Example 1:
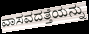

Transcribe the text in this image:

ವಾಸವದತ್ತೆಯನ್ನು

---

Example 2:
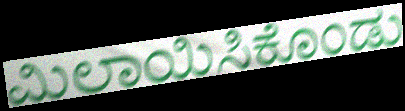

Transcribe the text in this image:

ಮಿಲಾಯಿಸಿಕೊಂಡು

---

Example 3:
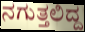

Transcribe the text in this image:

ನಗುತ್ತಲಿದ್ದ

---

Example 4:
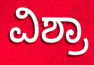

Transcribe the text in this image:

ವಿಶ್ರಾ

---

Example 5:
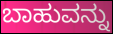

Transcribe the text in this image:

ಬಾಹುವನ್ನು